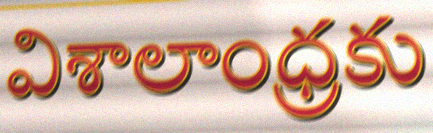
విశాలాంధ్రకు